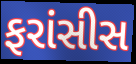
ફરાંસીસ